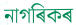
নাগৰিকৰ